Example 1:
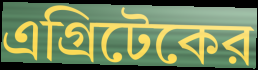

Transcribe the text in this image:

এগ্রিটেকের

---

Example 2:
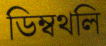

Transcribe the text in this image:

ডিম্বথলি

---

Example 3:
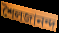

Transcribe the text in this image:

শৈলজানন্দ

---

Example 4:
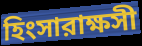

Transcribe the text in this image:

হিংসারাক্ষসী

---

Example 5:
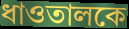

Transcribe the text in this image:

ধাওতালকে